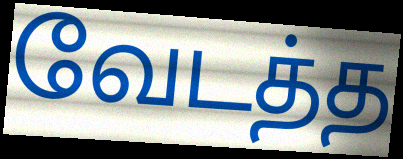
வேடத்த